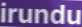
irundu